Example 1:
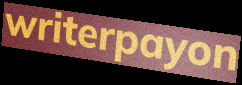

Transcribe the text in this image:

writerpayon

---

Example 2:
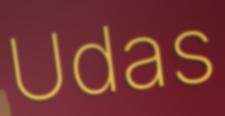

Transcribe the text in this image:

Udas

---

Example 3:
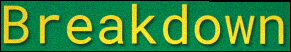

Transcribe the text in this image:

Breakdown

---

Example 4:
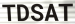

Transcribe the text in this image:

TDSAT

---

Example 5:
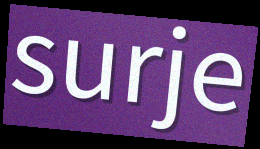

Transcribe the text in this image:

surje